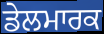
ਡੇਲਮਾਰਕ